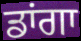
ਡਾਂਗਾ